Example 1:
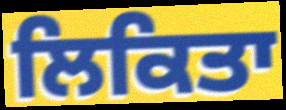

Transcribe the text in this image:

ਲਿਕਿਤਾ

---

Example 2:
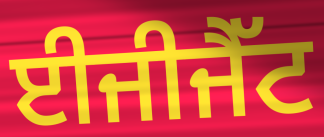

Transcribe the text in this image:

ਈਜੀਜੈੱਟ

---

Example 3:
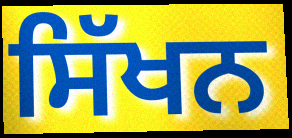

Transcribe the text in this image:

ਸਿੱਖਨ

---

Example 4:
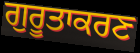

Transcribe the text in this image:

ਗੁਰੂਤਾਕਰਣ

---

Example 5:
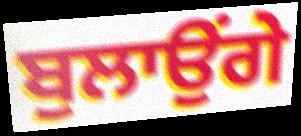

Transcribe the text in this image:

ਬੁਲਾਉਂਗੇ